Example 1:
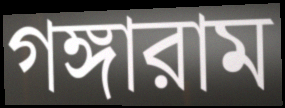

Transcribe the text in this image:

গঙ্গারাম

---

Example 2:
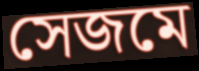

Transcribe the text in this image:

সেজমে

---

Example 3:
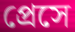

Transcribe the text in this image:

প্রেসে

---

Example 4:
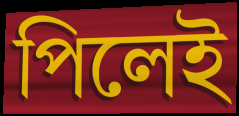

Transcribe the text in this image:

পিলেই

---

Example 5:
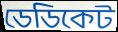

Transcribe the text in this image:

ডেডিকেট